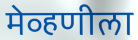
मेव्हणीला